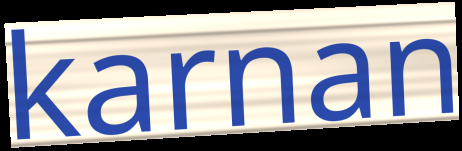
karnan